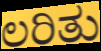
ಲರಿತು